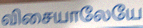
விசையாலேயே